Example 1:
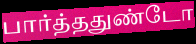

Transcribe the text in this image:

பார்த்ததுண்டோ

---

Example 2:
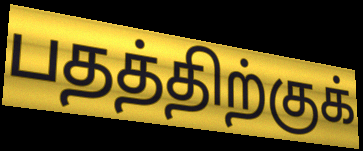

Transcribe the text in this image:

பதத்திற்குக்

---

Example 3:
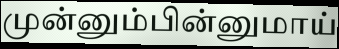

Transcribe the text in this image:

முன்னும்பின்னுமாய்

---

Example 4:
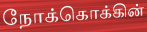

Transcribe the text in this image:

நோக்கொக்கின்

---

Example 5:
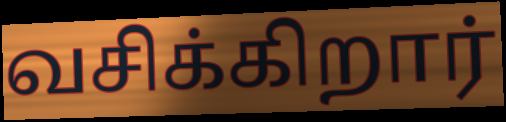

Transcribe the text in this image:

வசிக்கிறார்